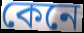
কেনে